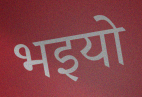
भइयो